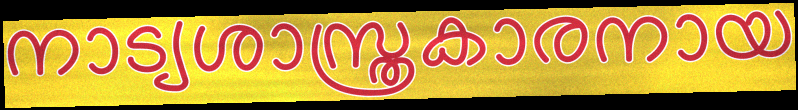
നാട്യശാസ്ത്രകാരനായ